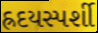
હ્રદયસ્પર્શી